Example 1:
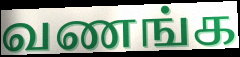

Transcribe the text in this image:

வணங்க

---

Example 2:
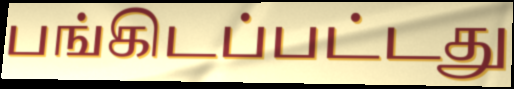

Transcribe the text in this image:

பங்கிடப்பட்டது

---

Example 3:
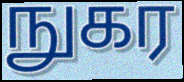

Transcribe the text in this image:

நுகர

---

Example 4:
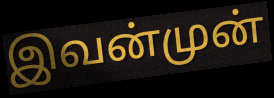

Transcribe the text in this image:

இவன்முன்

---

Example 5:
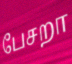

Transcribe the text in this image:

பேசறா